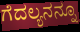
ಗೆದಲ್ಯನನ್ನೂ